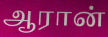
ஆரான்